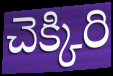
చెక్కిరి